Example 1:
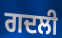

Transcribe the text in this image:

ਗਦਲੀ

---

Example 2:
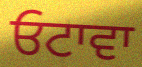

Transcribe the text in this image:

ਓਟਾਵਾ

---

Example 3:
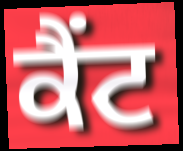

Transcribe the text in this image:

ਕੈਂਟ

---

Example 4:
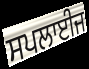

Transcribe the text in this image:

ਸਪਲਾਈਜ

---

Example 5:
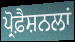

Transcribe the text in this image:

ਪ੍ਰੋਫ਼ੈਸ਼ਨਲਾਂ